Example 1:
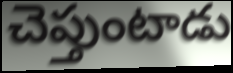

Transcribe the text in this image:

చెప్తుంటాడు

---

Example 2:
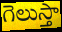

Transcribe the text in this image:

గెలుస్తా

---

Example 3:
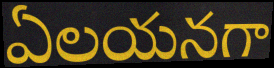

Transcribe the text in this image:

ఏలయనగా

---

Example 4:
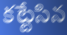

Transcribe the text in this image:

కట్టేసిన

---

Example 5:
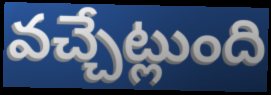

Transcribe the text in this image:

వచ్చేట్లుంది